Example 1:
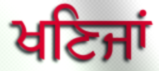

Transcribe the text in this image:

ਖਣਿਜਾਂ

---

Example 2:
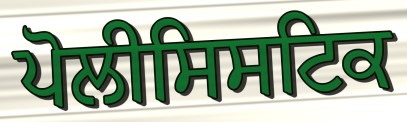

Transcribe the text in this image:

ਪੋਲੀਸਿਸਟਿਕ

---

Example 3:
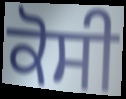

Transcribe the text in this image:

ਕੋਸੀ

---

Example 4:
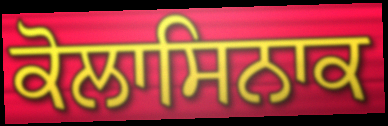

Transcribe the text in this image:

ਕੋਲਾਸਿਨਾਕ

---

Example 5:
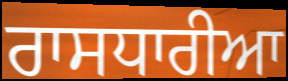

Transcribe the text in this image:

ਰਾਸਧਾਰੀਆ